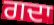
ਗਦਾ